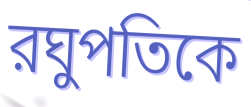
রঘুপতিকে